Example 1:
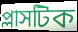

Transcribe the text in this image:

প্লাসটিক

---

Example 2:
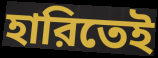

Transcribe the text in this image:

হারিতেই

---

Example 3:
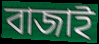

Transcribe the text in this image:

বাজাই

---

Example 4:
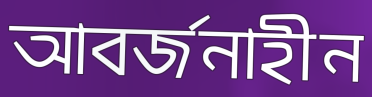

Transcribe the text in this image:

আবর্জনাহীন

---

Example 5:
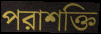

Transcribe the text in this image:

পরাশক্তি